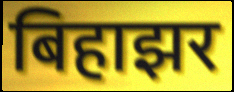
बिहाझर